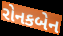
રોનકબેન